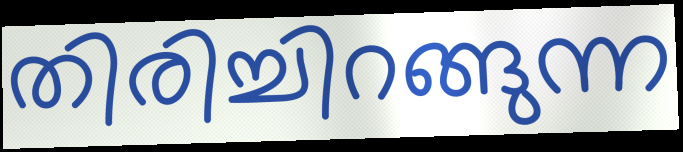
തിരിച്ചിറങ്ങുന്ന